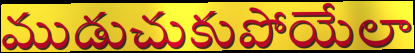
ముడుచుకుపోయేలా